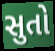
સુતો